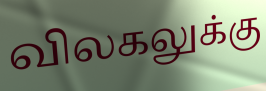
விலகலுக்கு